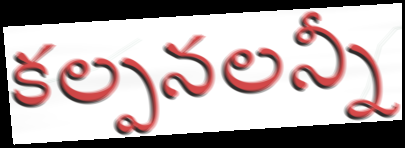
కల్పనలన్నీ